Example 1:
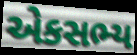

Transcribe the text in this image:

એકસભ્ય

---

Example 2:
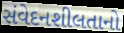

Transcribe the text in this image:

સંવેદનશીલતાનો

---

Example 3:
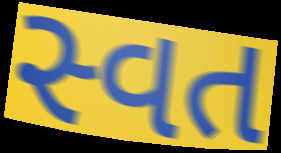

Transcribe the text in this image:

સ્વત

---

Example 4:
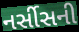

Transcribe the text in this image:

નર્સીસની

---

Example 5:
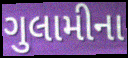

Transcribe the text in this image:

ગુલામીના